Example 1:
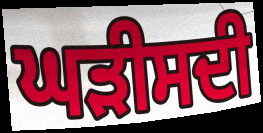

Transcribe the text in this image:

ਘੜੀਸਦੀ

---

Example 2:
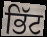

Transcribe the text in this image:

ਭਿੱਟ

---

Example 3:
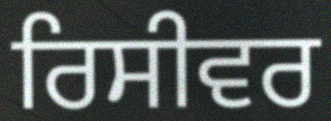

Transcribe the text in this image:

ਰਿਸੀਵਰ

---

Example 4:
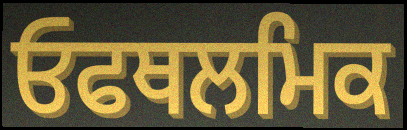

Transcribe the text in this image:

ਓਫਥਲਮਿਕ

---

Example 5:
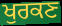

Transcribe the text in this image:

ਖੁਰਕਣ